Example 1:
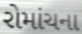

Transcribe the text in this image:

રોમાંચના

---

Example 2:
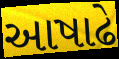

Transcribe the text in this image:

આષાઢે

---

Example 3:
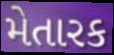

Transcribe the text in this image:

મેતારક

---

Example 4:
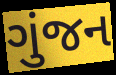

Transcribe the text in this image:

ગુંજન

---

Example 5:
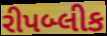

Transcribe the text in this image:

રીપબ્લીક